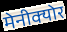
मेनीक्योर